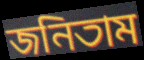
জনিতাম